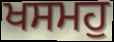
ਖਸਮਹੁ